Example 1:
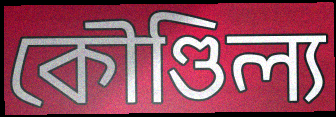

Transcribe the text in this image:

কৌণ্ডিল্য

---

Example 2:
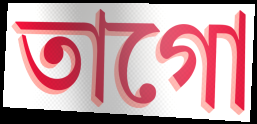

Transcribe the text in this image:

তাগো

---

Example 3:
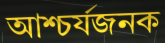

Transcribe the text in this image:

আশ্চর্যজনক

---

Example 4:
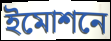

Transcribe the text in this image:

ইমোশনে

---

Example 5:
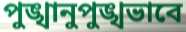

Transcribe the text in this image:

পুঙ্খানুপুঙ্খভাবে